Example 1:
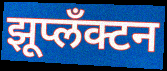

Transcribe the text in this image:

झूप्लँक्टन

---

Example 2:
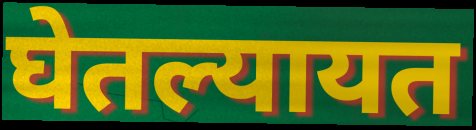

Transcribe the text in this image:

घेतल्यायत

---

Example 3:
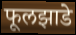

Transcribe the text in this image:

फूलझाडे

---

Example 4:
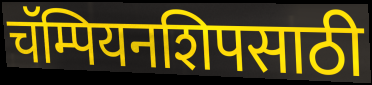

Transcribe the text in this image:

चॅम्पियनशिपसाठी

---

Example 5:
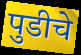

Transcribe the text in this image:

पुडीचे